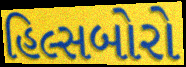
હિલ્સબોરો